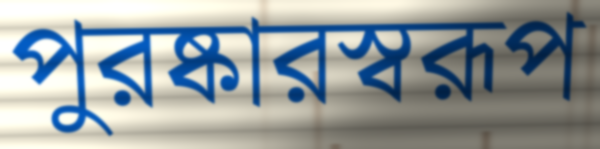
পুরষ্কারস্বরূপ